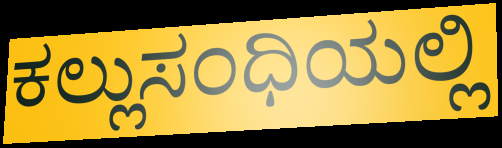
ಕಲ್ಲುಸಂಧಿಯಲ್ಲಿ